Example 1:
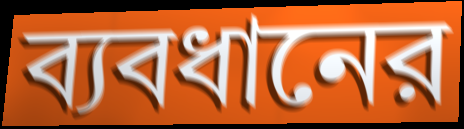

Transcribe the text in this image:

ব্যবধানের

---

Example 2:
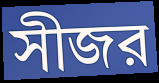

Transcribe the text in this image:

সীজর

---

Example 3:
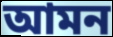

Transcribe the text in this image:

আমন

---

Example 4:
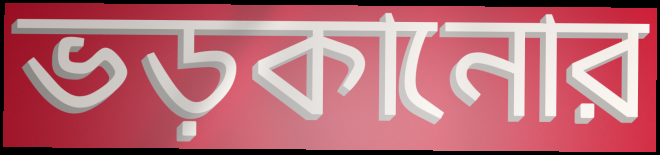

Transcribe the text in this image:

ভড়কানোর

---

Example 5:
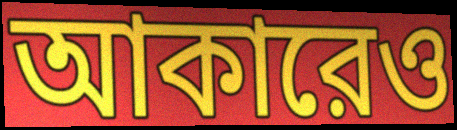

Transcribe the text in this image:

আকারেও